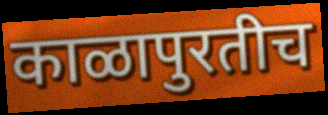
काळापुरतीच